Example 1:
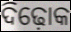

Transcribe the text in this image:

ଦିଢ଼ୋକ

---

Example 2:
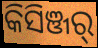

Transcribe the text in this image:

କିସିଞ୍ଜର୍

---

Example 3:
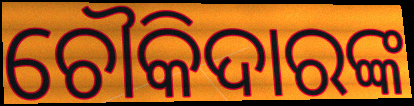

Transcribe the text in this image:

ଚୌକିଦାରଙ୍କ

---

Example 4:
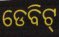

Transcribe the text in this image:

ଡେବିଟ୍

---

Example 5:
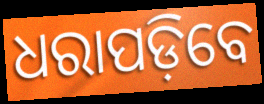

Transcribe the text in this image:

ଧରାପଡ଼ିବେ